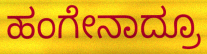
ಹಂಗೇನಾದ್ರೂ